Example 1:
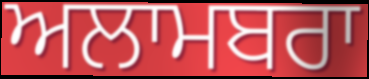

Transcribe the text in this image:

ਅਲਾਮਬਰਾ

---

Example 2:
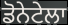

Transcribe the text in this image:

ਡੋਨੇਟੇਲਾ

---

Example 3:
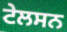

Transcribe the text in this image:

ਟੇਲਸਨ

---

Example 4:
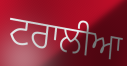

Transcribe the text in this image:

ਟਰਾਲੀਆ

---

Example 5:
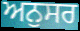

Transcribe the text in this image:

ਅਨੁਸਰ